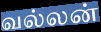
வல்லன்